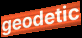
geodetic